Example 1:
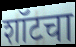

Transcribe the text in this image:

शॉटचा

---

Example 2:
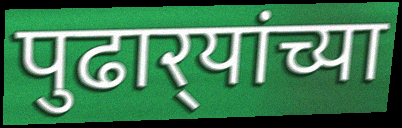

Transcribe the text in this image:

पुढार्‍यांच्या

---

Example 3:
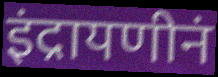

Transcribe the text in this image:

इंद्रायणीनं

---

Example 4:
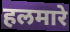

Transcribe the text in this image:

हलमारे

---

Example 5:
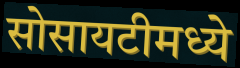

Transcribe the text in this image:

सोसायटीमध्ये